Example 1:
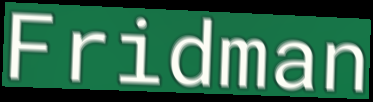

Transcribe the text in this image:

Fridman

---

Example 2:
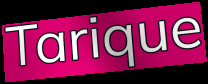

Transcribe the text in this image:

Tarique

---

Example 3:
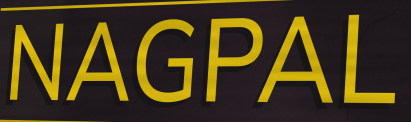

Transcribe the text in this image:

NAGPAL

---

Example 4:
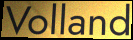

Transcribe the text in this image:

Volland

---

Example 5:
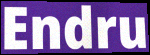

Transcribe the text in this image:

Endru